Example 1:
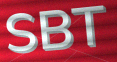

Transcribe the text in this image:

SBT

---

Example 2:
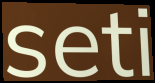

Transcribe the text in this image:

seti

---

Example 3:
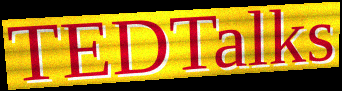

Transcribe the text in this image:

TEDTalks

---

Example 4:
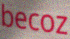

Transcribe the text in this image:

becoz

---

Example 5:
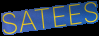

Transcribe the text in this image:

SATEES